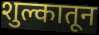
शुल्कातून